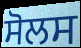
ਸੋਲਸ